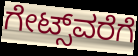
ಗೇಟ್ಸ್‌ವರೆಗೆ